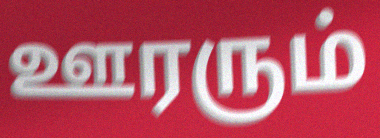
ஊரரும்